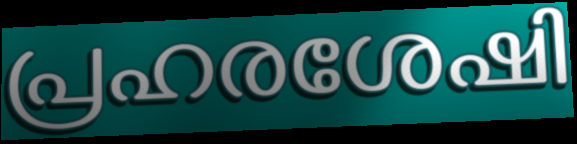
പ്രഹരശേഷി